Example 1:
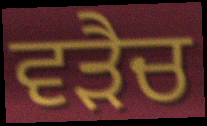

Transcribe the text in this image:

ਵੜੈਚ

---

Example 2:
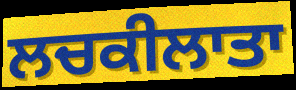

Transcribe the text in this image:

ਲਚਕੀਲਾਤਾ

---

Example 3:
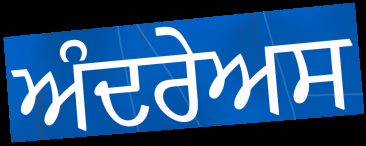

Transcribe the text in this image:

ਅੰਦਰੇਅਸ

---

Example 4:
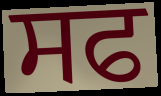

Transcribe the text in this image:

ਸਫ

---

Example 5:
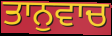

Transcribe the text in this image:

ਤਾਨੁਵਾਚ